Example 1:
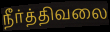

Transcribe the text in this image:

நீர்த்திவலை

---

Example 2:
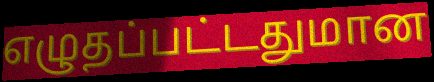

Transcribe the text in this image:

எழுதப்பட்டதுமான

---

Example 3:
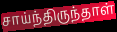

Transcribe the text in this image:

சாய்ந்திருந்தாள்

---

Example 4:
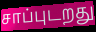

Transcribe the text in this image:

சாப்புடறது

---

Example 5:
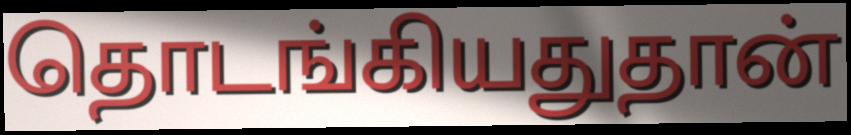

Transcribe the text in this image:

தொடங்கியதுதான்